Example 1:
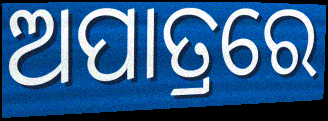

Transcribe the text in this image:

ଅପାତ୍ରରେ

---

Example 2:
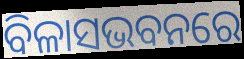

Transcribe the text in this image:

ବିଳାସଭବନରେ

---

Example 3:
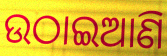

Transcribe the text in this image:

ଉଠାଇଆଣି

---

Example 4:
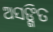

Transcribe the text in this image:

ଅସଙ୍ଗିତ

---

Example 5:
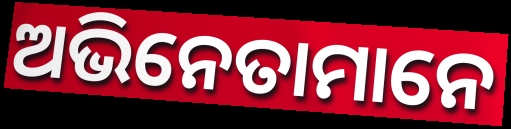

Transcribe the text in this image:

ଅଭିନେତାମାନେ